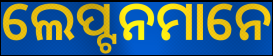
ଲେପ୍ଟନମାନେ